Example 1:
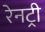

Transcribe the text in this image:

रेनट्री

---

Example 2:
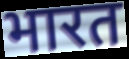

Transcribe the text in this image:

भारत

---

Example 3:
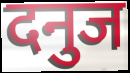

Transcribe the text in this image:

दनुज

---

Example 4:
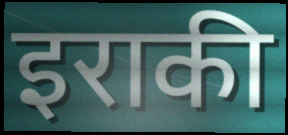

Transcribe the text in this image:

इराकी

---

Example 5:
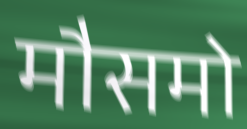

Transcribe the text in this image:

मौसमो